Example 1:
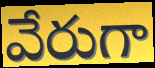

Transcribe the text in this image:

వేరుగా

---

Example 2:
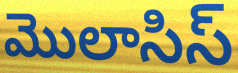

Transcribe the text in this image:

మొలాసిస్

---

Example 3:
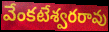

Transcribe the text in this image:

వేంకటేశ్వరరావు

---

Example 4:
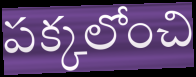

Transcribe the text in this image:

పక్కలోంచి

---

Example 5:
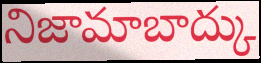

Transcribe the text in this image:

నిజామాబాద్కు